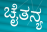
ಚೈತನ್ಯ